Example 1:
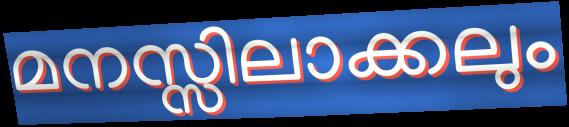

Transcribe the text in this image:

മനസ്സിലാക്കലും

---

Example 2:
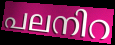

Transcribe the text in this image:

പലനിറ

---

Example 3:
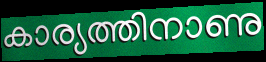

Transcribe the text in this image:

കാര്യത്തിനാണു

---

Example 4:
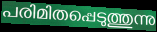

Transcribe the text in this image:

പരിമിതപ്പെടുത്തുന്നു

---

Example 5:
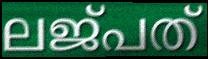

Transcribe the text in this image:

ലജ്പത്